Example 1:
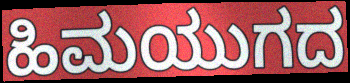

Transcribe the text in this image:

ಹಿಮಯುಗದ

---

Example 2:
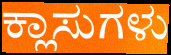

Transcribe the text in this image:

ಕ್ಲಾಸುಗಳು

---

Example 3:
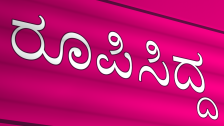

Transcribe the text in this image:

ರೂಪಿಸಿದ್ದ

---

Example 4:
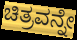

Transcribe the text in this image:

ಚಿತ್ರವನ್ನೇ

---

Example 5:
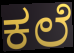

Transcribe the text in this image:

ಕಲೆ